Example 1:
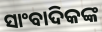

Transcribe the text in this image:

ସାଂବାଦିକଙ୍କ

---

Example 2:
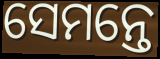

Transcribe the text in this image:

ସେମନ୍ତେ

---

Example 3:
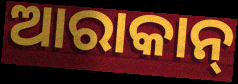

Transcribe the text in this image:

ଆରାକାନ୍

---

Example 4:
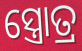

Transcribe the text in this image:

ସ୍ତ୍ରୋତ୍ର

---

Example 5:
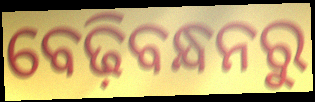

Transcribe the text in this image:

ବେଢ଼ିବନ୍ଧନରୁ